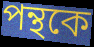
পন্থকে